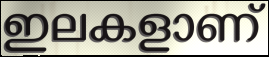
ഇലകളാണ്